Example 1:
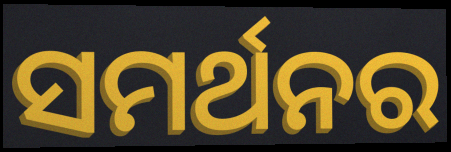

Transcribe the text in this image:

ସମର୍ଥନର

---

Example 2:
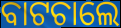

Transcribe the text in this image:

ବାଟଚାଲେ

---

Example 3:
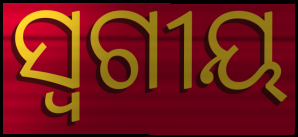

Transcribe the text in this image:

ସ୍ୱଗୀୟ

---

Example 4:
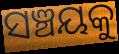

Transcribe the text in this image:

ସଞ୍ଚୟକୁ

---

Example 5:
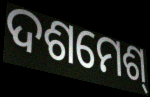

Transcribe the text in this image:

ଦଶମେଶ୍